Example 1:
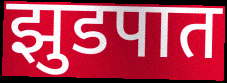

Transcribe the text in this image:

झुडपात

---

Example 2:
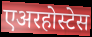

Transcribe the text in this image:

एअरहोस्टेस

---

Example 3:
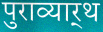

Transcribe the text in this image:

पुराव्यार्थ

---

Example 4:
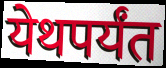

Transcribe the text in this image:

येथपर्यंत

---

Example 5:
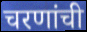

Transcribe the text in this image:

चरणांची